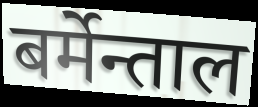
बर्मेन्ताल